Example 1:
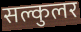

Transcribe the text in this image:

सल्कुलर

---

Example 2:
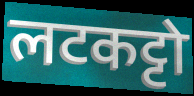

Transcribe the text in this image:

लटकट्टो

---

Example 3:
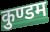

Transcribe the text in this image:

कुण्डम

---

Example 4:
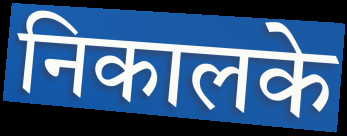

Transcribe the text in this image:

निकालके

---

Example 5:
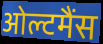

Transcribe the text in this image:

ओल्टमैंस